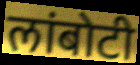
लांबोटी